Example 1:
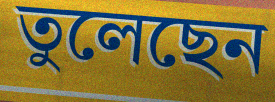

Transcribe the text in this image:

তুলেছেন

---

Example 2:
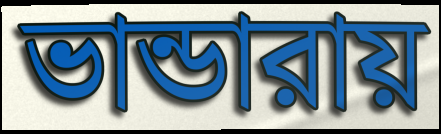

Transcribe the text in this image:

ভান্ডারায়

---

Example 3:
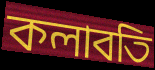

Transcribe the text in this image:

কলাবতি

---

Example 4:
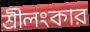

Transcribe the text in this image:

শ্রীলংকার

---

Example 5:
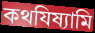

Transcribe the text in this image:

কথযিষ্যামি